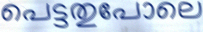
പെട്ടതുപോലെ